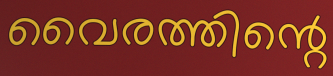
വൈരത്തിന്റെ